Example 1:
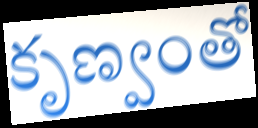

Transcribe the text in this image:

కృణ్వంతో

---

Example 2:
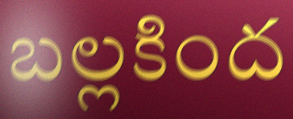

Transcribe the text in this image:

బల్లకింద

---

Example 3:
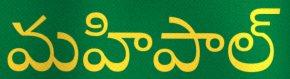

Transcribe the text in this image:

మహిపాల్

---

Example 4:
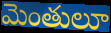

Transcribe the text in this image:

మెంతులూ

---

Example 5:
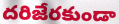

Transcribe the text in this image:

దరిజేరకుండా